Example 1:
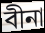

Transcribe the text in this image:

বীনা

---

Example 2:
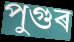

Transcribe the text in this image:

পুগুৰ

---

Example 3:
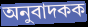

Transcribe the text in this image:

অনুবাদকক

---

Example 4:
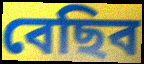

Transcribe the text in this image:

বেছিব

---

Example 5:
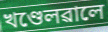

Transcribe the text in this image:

খণ্ডেলৱালে